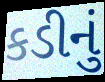
કડીનું